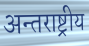
अन्तराष्ट्रीय